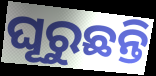
ଘୂରୁଛନ୍ତି